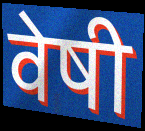
वेषी